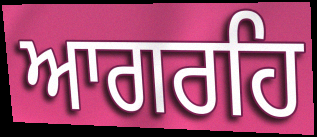
ਆਗਰਹਿ